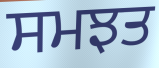
ਸਮਝਤ